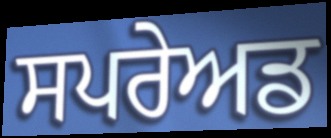
ਸਪਰੇਅਡ